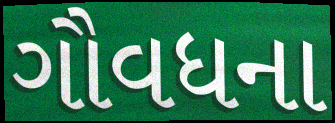
ગૌવધના